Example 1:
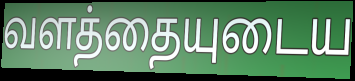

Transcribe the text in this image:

வளத்தையுடைய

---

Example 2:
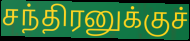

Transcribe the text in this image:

சந்திரனுக்குச்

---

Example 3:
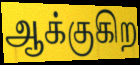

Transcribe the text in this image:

ஆக்குகிற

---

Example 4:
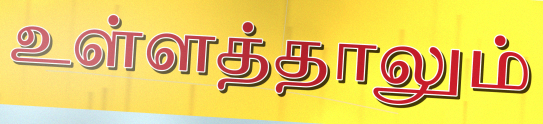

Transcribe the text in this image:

உள்ளத்தாலும்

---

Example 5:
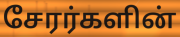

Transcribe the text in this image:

சேரர்களின்